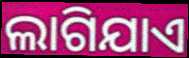
ଲାଗିଯାଏ